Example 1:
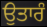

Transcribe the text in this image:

ਉਤਾਰੰ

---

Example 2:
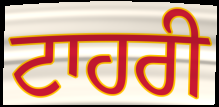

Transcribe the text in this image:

ਟਾਹਰੀ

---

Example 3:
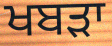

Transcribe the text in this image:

ਖਬੜਾ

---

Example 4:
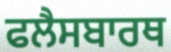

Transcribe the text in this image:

ਫਲੈਸਬਾਰਥ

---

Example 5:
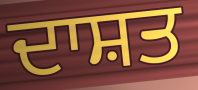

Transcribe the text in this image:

ਦਾਸ਼ਤ